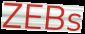
ZEBs